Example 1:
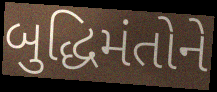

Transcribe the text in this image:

બુદ્ધિમંતોને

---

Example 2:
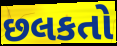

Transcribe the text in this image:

છલકતો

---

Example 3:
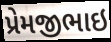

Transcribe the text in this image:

પ્રેમજીભાઇ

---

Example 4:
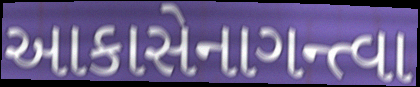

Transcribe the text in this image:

આકાસેનાગન્ત્વા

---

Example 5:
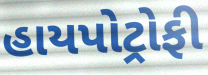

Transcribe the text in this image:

હાયપોટ્રોફી